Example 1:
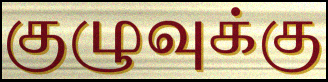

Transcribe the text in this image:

குழுவுக்கு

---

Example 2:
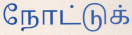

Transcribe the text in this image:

நோட்டுக்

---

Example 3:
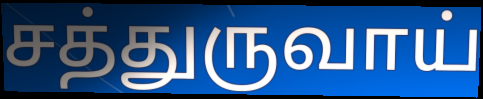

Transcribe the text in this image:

சத்துருவாய்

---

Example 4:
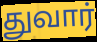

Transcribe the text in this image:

துவார்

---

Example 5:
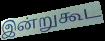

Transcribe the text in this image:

இன்றுகூட